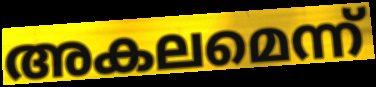
അകലമെന്ന്